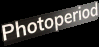
Photoperiod